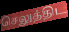
செலுத்திட